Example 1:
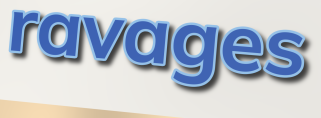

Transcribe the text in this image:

ravages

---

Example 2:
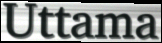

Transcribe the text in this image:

Uttama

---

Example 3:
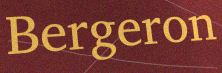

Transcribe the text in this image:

Bergeron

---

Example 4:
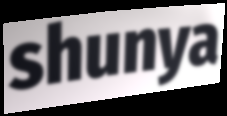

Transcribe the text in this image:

shunya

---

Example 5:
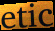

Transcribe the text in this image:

etic